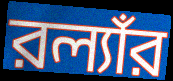
রল্যাঁর